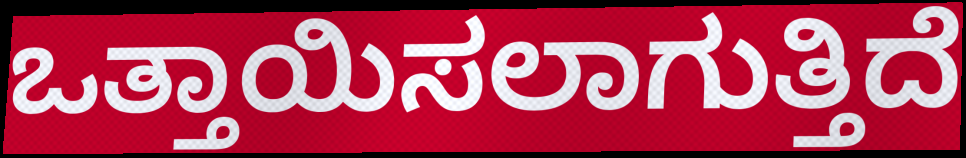
ಒತ್ತಾಯಿಸಲಾಗುತ್ತಿದೆ